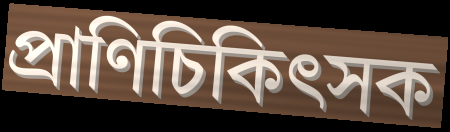
প্রাণিচিকিৎসক